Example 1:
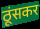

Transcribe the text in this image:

ठूंसकर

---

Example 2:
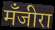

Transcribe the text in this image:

मँजीरा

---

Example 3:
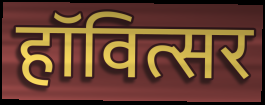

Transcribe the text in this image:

हॉवित्सर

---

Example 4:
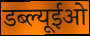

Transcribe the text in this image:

डब्ल्यूईओ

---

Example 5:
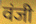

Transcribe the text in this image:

वंजी